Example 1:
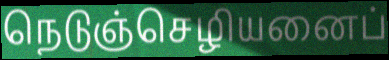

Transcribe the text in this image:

நெடுஞ்செழியனைப்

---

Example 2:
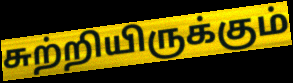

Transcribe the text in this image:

சுற்றியிருக்கும்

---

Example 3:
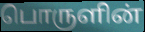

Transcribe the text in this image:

பொருளின்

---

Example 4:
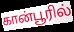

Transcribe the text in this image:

கான்பூரில்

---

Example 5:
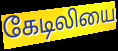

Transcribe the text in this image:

கேடிலியை